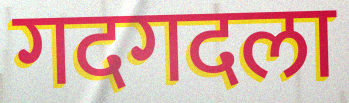
गदगदला